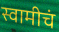
स्वामीचं